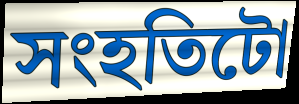
সংহতিটো